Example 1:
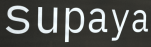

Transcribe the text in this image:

supaya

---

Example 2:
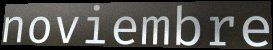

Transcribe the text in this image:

noviembre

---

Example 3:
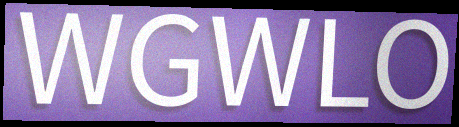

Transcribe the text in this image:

WGWLO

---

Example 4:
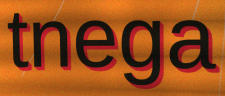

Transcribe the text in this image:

tnega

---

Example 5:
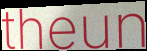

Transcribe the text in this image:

theun